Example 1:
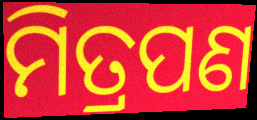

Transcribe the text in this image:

ମିତ୍ରପଣ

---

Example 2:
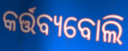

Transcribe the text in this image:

କର୍ତ୍ତବ୍ୟବୋଲି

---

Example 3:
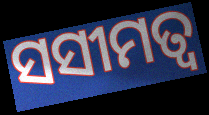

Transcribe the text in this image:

ସସୀମତ୍ୱ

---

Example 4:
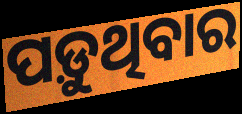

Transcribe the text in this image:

ପଡ଼ୁଥିବାର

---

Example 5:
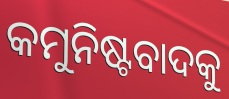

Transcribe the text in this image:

କମୁନିଷ୍ଟବାଦକୁ